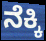
ನೆಕ್ಕಿ